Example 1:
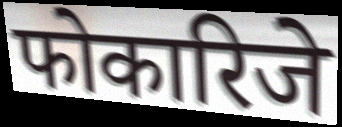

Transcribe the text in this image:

फोकारिजे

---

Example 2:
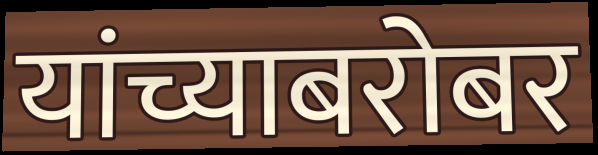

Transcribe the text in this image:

यांच्याबरोबर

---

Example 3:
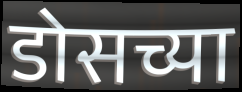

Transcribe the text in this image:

डोसच्या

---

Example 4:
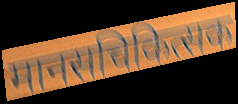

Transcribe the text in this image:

मानसचिकित्सक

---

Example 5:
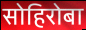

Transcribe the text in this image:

सोहिरोबा